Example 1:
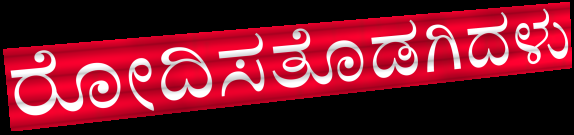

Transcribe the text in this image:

ರೋದಿಸತೊಡಗಿದಳು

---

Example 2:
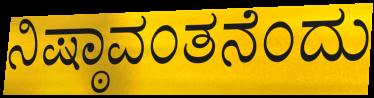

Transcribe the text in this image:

ನಿಷ್ಠಾವಂತನೆಂದು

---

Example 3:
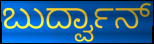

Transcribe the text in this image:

ಬುರ್ದ್ವಾನ್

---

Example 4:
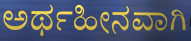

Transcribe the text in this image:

ಅರ್ಥಹೀನವಾಗಿ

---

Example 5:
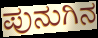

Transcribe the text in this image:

ಪುನುಗಿನ